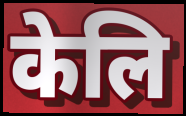
केलि